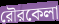
রৌরকেলা